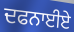
ਦਫਨਾਈਏ